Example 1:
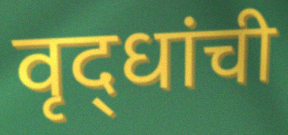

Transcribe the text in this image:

वृद्धांची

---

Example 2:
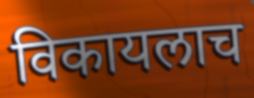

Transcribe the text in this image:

विकायलाच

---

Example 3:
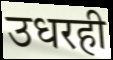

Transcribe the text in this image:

उधरही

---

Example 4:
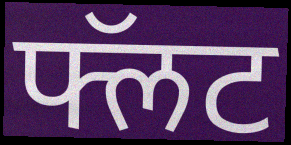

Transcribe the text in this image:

फ्लॅट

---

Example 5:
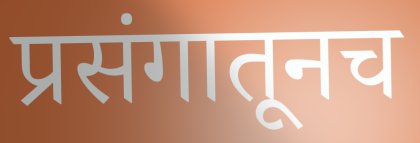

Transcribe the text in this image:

प्रसंगातूनच